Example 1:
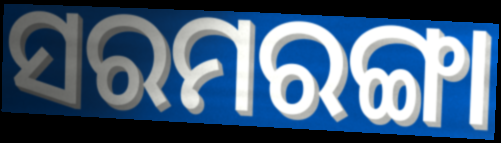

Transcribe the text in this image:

ସରମରଙ୍ଗା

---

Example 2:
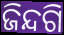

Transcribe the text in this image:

ଜିନ୍ଦଗି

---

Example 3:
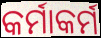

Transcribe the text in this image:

କର୍ମାକର୍ମ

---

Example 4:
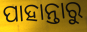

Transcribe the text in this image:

ପାହାନ୍ତାରୁ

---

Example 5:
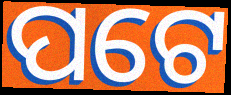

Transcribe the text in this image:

ପଟେ